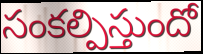
సంకల్పిస్తుందో